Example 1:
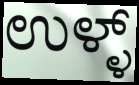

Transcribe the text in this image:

ಉಳ್ಳ್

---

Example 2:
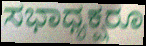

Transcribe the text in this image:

ಸಭಾಧ್ಯಕ್ಷರೂ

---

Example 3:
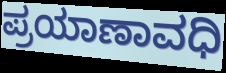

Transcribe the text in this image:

ಪ್ರಯಾಣಾವಧಿ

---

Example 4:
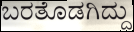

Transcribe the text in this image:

ಬರತೊಡಗಿದ್ದು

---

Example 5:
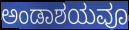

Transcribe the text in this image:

ಅಂಡಾಶಯವೂ